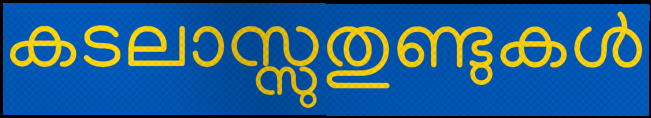
കടലാസ്സുതുണ്ടുകൾ